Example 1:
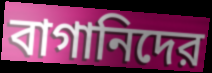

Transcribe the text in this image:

বাগানিদের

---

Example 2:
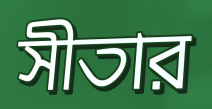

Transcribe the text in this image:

সীতার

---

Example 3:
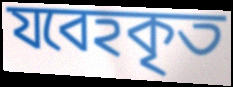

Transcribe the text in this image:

যবেহকৃত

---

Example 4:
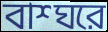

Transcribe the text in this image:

বাশ্ঘরে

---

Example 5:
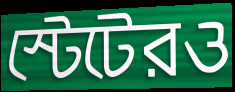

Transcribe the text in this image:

স্টেটেরও